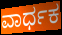
ವಾರ್ಧಕ